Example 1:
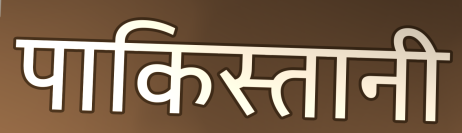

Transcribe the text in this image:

पाकिस्तानी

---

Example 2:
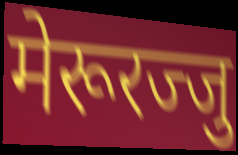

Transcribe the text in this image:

मेरूरज्जु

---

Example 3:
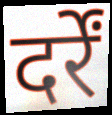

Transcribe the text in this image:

दर्रें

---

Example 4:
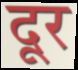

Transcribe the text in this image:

दूर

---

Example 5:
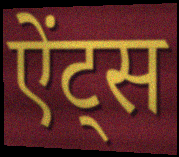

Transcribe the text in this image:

ऐंट्स